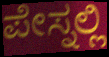
ಪೇಸ್ನಲ್ಲಿ